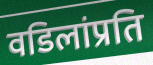
वडिलांप्रति